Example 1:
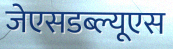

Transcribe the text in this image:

जेएसडब्ल्यूएस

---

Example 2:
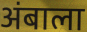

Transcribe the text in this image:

अंबाला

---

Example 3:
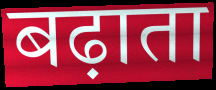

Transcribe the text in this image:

बढ़ाता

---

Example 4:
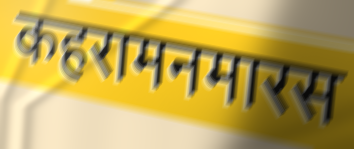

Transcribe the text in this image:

कहरामनमारस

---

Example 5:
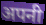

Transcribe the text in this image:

अपनी